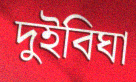
দুইবিঘা